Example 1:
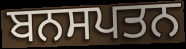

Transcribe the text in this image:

ਬਨਸਪਤਨ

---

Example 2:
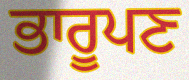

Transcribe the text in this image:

ਭਾਰੂਪਣ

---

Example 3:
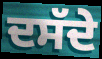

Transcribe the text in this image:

ਦਸੱਦੇ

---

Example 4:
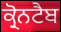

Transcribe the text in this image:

ਕ੍ਰੋਨਟੈਬ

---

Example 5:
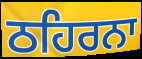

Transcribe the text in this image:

ਠਹਿਰਨਾ